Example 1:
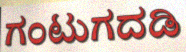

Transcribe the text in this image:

ಗಂಟುಗದಡಿ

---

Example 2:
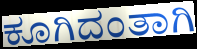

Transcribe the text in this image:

ಕೂಗಿದಂತಾಗಿ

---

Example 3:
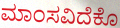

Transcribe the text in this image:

ಮಾಂಸವಿದೆಕೊ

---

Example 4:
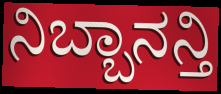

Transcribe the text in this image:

ನಿಬ್ಬಾನನ್ತಿ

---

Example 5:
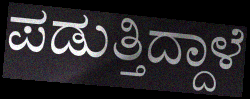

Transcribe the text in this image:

ಪಡುತ್ತಿದ್ದಾಳೆ